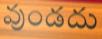
వుండదు